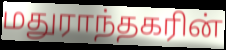
மதுராந்தகரின்